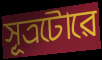
সূত্ৰটোৱে